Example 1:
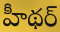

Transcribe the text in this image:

హీథర్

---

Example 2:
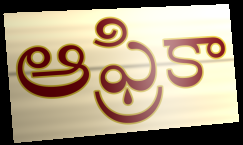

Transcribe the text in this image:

ఆఫ్రికా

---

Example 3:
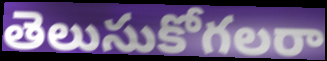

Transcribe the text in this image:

తెలుసుకోగలరా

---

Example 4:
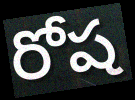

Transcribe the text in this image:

రోష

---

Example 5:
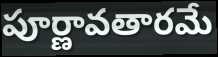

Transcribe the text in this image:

పూర్ణావతారమే